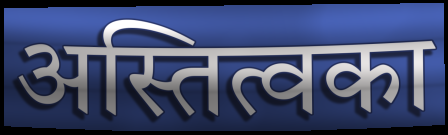
अस्तित्वका